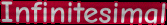
Infinitesimal